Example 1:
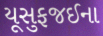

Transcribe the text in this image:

યૂસુફજઈના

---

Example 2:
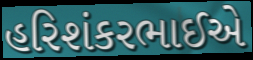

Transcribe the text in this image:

હરિશંકરભાઈએ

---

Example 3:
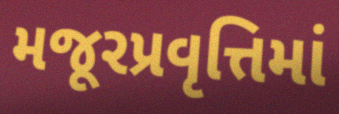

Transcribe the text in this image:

મજૂરપ્રવૃત્તિમાં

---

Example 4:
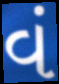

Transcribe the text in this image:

વં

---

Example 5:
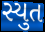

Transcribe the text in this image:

સ્યુત